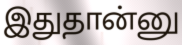
இதுதான்னு